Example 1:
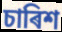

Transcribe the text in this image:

চাৰিশ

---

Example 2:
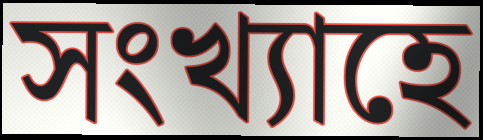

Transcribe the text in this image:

সংখ্যাহে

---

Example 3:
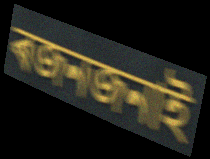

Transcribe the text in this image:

ৰজনজনাই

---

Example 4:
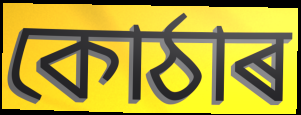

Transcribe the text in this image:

কোঠাৰ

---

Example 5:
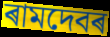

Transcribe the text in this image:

ৰামদেবৰ